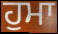
ਹੁਮਾ